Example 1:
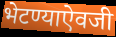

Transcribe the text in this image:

भेटण्याऐवजी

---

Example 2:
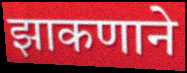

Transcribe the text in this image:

झाकणाने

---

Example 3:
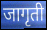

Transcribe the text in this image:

जागृती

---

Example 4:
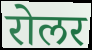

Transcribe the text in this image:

रोलर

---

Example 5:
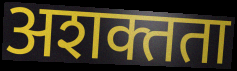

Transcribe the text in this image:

अशक्‍तता